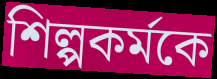
শিল্পকর্মকে